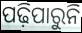
ପଢ଼ିପାରୁନି